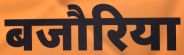
बजौरिया